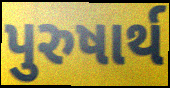
પુરુષાર્થ